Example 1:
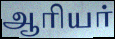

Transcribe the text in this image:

ஆரியர்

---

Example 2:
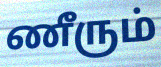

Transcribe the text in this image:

ணீரும்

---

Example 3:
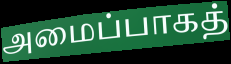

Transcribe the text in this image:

அமைப்பாகத்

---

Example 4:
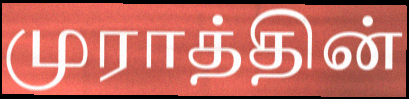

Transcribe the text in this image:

முராத்தின்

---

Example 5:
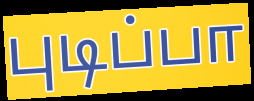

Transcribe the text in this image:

புடிப்பா